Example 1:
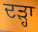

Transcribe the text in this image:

ਦੜ੍ਹਾ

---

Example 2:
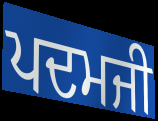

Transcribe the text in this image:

ਪਦਮਜੀ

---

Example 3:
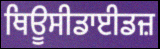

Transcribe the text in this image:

ਥਿਊਸੀਡਾਈਡਜ਼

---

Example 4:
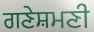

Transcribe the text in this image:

ਗਣੇਸ਼ਮਣੀ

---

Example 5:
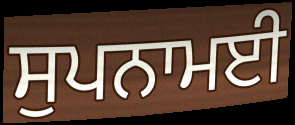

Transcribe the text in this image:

ਸੁਪਨਾਮਈ